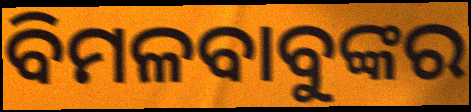
ବିମଳବାବୁଙ୍କର